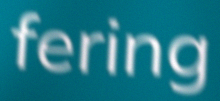
fering